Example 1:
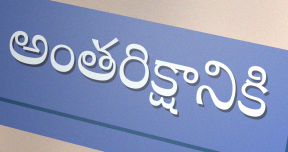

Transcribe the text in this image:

అంతరిక్షానికి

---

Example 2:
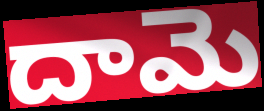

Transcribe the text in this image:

దామె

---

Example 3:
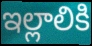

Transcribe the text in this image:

ఇల్లాలికి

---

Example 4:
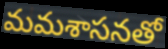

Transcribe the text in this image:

మమశాసనతో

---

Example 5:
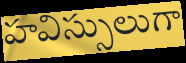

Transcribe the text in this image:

హవిస్సులుగా